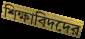
শিক্ষাবিদদের